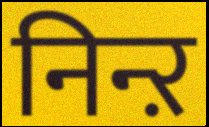
निन्ऱ